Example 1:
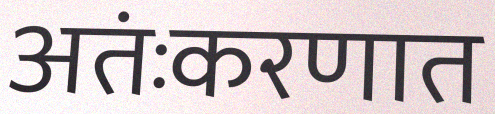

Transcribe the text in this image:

अतंःकरणात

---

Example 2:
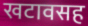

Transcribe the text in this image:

खटावसह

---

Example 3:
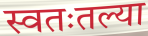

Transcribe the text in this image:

स्वतःतल्या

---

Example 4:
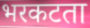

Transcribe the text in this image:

भरकटता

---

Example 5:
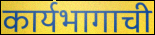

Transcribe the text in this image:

कार्यभागाची